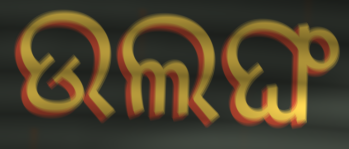
ଉଲଙ୍ଘ